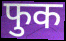
फुक